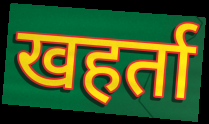
खहर्ता